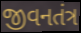
જીવનતંત્ર